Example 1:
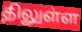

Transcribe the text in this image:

திலுள்ள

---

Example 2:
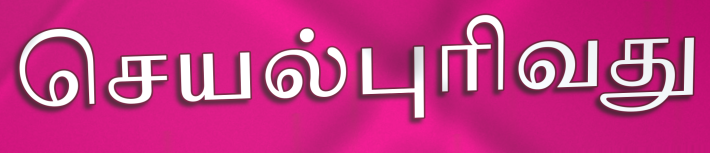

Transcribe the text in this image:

செயல்புரிவது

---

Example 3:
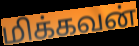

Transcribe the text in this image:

மிக்கவன்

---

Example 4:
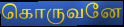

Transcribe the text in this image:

கொருவனே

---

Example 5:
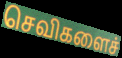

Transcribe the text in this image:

செவிகளைச்